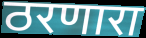
ठरणारा